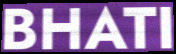
BHATI